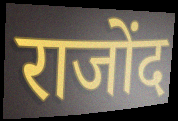
राजोंद